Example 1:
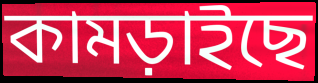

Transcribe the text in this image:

কামড়াইছে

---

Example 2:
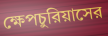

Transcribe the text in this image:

ক্ষেপচুরিয়াসের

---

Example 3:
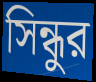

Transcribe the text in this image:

সিন্ধুর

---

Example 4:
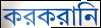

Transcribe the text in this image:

করকরানি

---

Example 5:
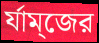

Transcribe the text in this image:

র্যাম্জের